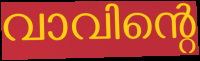
വാവിന്റെ